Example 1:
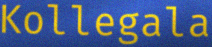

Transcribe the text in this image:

Kollegala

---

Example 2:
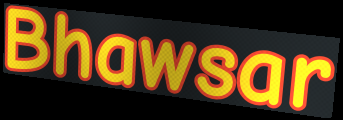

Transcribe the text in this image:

Bhawsar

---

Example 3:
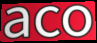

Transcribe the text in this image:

aco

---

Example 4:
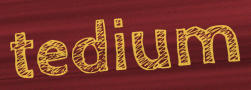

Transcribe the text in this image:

tedium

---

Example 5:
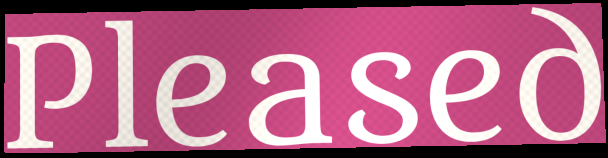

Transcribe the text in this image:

Pleased